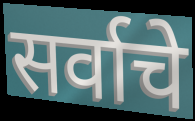
सर्वाचे